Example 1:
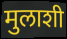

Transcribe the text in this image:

मुलाशी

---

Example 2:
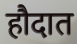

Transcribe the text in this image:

हौदात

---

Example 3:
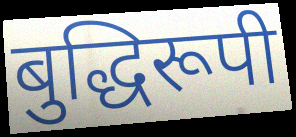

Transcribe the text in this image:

बुद्धिरूपी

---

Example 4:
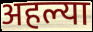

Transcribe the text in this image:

अहल्या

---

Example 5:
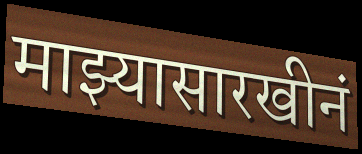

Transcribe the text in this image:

माझ्यासारखीनं